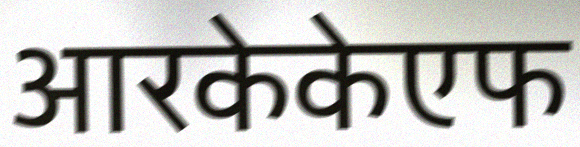
आरकेकेएफ